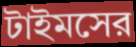
টাইমসের